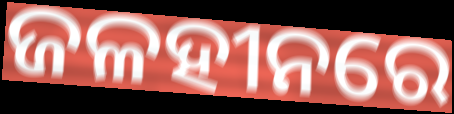
ଜଳହୀନରେ